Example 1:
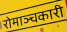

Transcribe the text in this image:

रोमाञ्चकारी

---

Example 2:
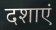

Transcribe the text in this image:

दशाएं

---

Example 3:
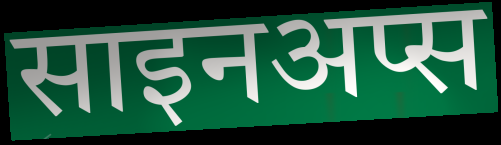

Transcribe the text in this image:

साइनअप्स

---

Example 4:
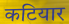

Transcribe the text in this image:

कटियार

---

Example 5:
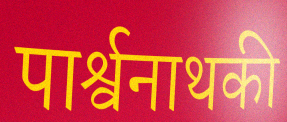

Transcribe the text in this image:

पार्श्वनाथकी